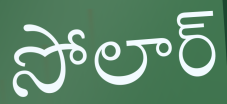
సోలార్